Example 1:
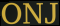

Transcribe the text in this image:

ONJ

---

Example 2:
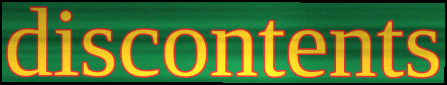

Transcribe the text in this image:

discontents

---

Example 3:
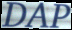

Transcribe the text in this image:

DAP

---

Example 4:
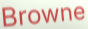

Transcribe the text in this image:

Browne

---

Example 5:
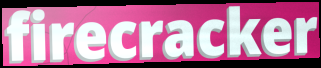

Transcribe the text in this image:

firecracker